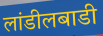
लांडीलबाडी